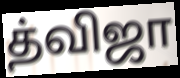
த்விஜா